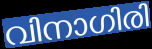
വിനാഗിരി